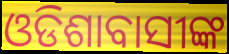
ଓଡିଶାବାସୀଙ୍କ